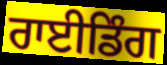
ਰਾਈਡਿੰਗ